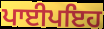
ਪਾਈਪਇਹ